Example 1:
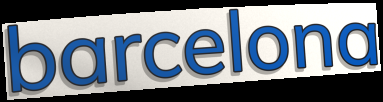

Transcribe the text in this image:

barcelona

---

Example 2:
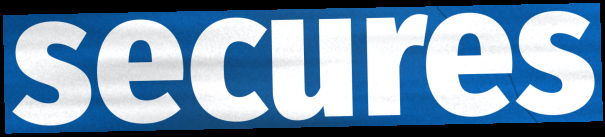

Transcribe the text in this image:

secures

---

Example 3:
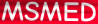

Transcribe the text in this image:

MSMED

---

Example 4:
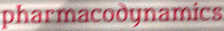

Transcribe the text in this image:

pharmacodynamics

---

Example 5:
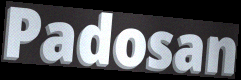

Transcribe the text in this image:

Padosan